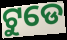
ଟୁଡେ